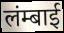
लंम्बाई